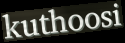
kuthoosi